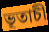
ভূতাচী